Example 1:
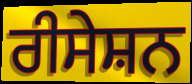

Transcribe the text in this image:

ਰੀਸੇਸ਼ਨ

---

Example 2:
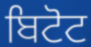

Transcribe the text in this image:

ਬਿਟੋਟ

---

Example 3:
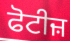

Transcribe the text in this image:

ਫੋਟੀਜ਼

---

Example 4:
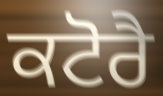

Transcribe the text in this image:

ਕਟੋਰੈ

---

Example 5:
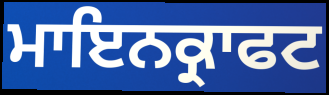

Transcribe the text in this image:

ਮਾਇਨਕ੍ਰਾਫਟ